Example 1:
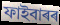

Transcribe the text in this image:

ফাইবাৰৰ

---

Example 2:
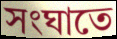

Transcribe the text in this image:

সংঘাতে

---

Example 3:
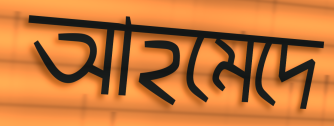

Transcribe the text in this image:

আহমেদে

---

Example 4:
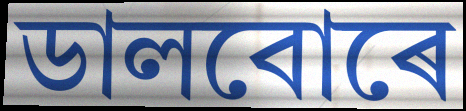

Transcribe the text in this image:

ডালবোৰে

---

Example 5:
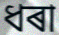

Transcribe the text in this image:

ধৰা